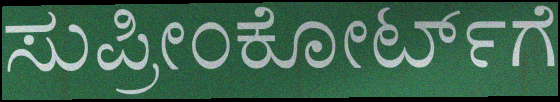
ಸುಪ್ರೀಂಕೋರ್ಟ್‌ಗೆ